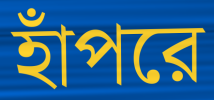
হাঁপরে